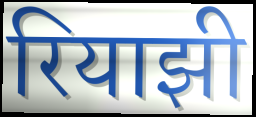
रियाझी